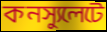
কনস্যুলেটে